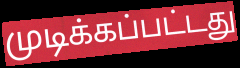
முடிக்கப்பட்டது